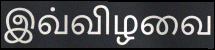
இவ்விழவை